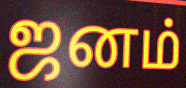
ஜனம்